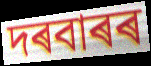
দৰবাৰৰ